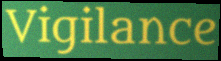
Vigilance